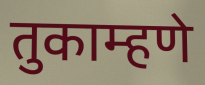
तुकाम्हणे